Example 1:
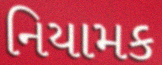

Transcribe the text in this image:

નિયામક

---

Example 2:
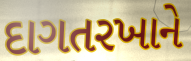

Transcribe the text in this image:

દાગતરખાને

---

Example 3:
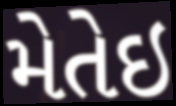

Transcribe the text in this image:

મેતેઇ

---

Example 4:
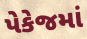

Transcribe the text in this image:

પેકેજમાં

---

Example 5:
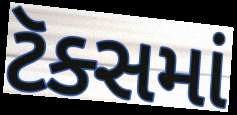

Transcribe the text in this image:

ટૅક્સમાં